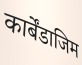
कार्बेंडाजिम